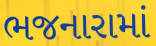
ભજનારામાં